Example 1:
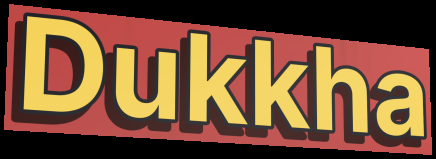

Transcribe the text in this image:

Dukkha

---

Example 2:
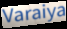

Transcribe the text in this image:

Varaiya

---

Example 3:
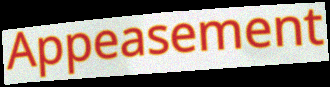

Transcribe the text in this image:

Appeasement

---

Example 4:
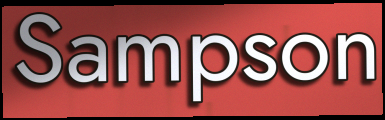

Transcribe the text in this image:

Sampson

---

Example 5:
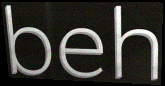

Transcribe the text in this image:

beh